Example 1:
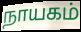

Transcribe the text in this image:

நாயகம்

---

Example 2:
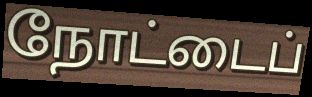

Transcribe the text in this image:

நோட்டைப்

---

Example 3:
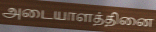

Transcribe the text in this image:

அடையாளத்தினை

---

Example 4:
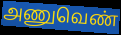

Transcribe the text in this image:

அணுவெண்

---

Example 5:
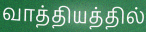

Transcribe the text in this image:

வாத்தியத்தில்